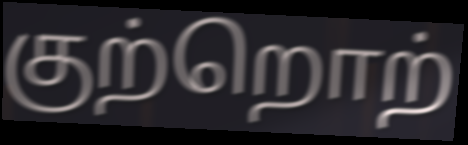
குற்றொற்